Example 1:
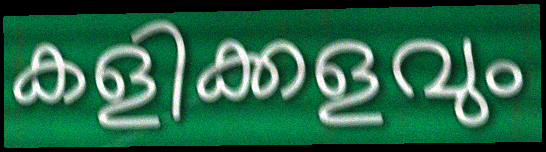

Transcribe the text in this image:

കളിക്കളവും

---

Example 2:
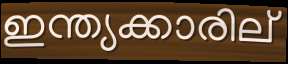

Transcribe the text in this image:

ഇന്ത്യക്കാരില്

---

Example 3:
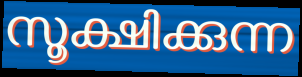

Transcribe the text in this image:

സൂക്ഷിക്കുന്ന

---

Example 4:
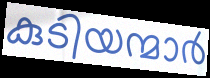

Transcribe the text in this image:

കുടിയന്മാർ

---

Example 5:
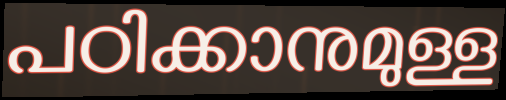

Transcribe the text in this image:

പഠിക്കാനുമുള്ള